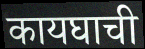
कायघाची